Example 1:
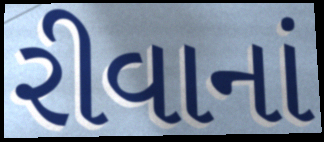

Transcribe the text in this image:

રીવાનાં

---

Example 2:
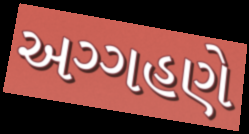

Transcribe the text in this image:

અગ્ગહણે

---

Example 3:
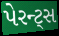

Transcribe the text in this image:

પેરન્ટ્સ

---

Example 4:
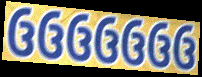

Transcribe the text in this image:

ઉઉઉઉઉઉઉ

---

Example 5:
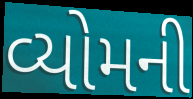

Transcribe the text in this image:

વ્યોમની